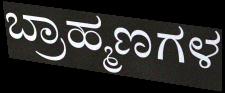
ಬ್ರಾಹ್ಮಣಗಳ